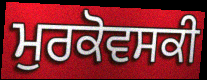
ਮੁਰਕੋਵਸਕੀ